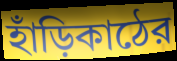
হাঁড়িকাঠের